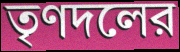
তৃণদলের